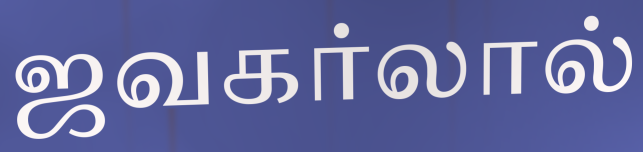
ஜவகர்லால்